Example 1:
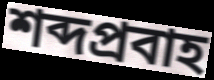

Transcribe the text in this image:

শব্দপ্রবাহ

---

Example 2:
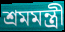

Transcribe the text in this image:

শ্রমমন্ত্রী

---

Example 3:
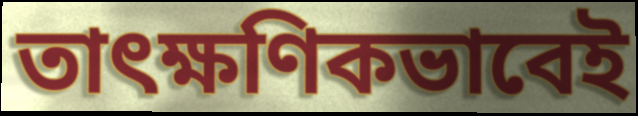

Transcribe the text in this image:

তাৎক্ষণিকভাবেই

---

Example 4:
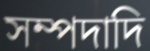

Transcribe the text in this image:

সম্পদাদি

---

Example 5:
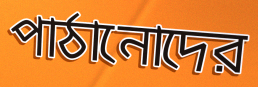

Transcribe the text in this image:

পাঠানোদের